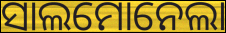
ସାଲମୋନେଲା